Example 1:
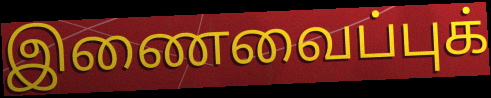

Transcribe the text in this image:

இணைவைப்புக்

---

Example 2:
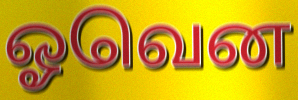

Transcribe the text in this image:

ஓவென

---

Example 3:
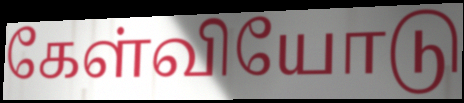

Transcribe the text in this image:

கேள்வியோடு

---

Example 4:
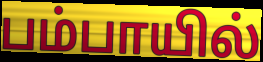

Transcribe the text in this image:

பம்பாயில்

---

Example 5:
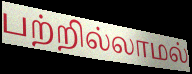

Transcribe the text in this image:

பற்றில்லாமல்